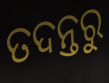
ତଦନ୍ତରୁ